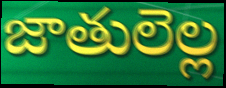
జాతులెల్ల